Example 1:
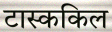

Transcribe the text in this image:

टास्ककिल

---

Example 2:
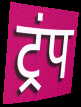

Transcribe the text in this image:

ट्रंप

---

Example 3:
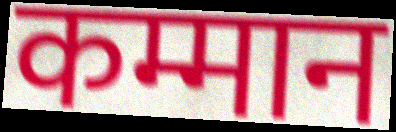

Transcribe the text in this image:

कम्मान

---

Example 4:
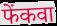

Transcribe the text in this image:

फेंकवा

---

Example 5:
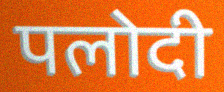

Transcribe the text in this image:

पलोदी